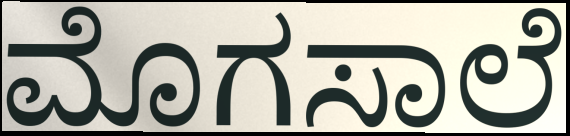
ಮೊಗಸಾಲೆ